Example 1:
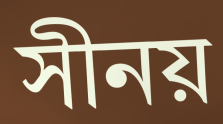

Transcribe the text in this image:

সীনয়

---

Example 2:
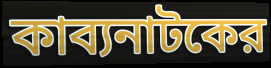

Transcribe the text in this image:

কাব্যনাটকের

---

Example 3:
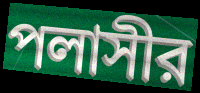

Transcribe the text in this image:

পলাসীর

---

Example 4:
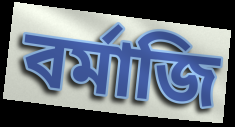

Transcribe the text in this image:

বর্মাজি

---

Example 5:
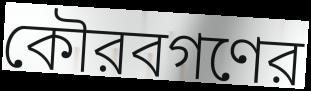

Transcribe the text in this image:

কৌরবগণের